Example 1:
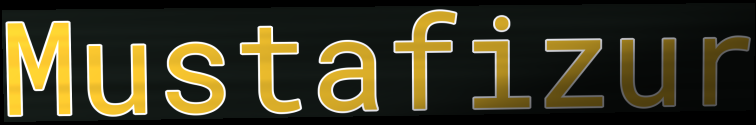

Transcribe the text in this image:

Mustafizur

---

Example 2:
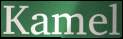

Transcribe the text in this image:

Kamel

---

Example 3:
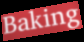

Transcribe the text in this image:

Baking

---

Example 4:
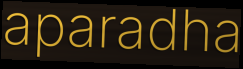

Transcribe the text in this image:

aparadha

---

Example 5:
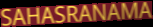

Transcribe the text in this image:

SAHASRANAMA